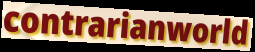
contrarianworld